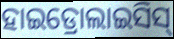
ହାଇଡ୍ରୋଲାଇସିସ୍